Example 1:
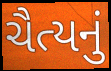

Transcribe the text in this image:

ચૈત્યનું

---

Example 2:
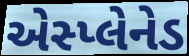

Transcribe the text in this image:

એસ્પ્લેનેડ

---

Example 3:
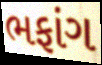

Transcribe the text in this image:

ભફાંગ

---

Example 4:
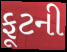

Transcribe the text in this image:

ફૂટની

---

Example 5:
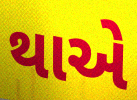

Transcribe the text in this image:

થાએ